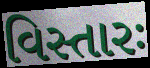
વિસ્તારઃ